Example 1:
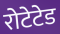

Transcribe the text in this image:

रोटेटेड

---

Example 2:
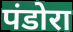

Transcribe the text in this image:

पंडोरा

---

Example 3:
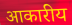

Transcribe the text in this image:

आकारीय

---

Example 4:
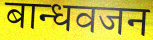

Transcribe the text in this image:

बान्धवजन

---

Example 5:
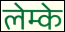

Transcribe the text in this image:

लेम्के